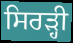
ਸਿਰੜ੍ਹੀ